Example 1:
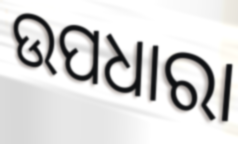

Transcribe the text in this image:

ଉପଧାରା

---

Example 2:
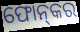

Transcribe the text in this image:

ଫୋନ୍‌କର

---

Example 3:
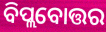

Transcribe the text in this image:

ବିପ୍ଲବୋତ୍ତର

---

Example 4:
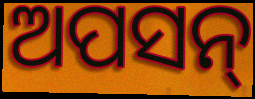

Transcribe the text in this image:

ଅପସନ୍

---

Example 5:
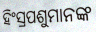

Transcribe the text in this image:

ହିଂସ୍ରପଶୁମାନଙ୍କ